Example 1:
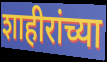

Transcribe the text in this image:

शाहीरांच्या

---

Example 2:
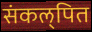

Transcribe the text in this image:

संकल्पित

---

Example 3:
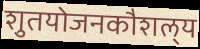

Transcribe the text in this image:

श्रुतयोजनकौशल्य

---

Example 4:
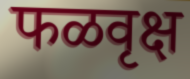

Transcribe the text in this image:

फळवृक्ष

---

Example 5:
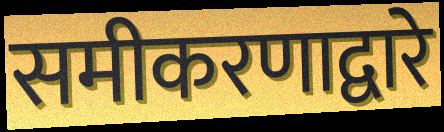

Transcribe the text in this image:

समीकरणाद्वारे